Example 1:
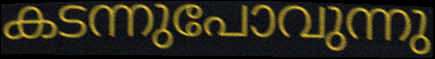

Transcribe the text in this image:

കടന്നുപോവുന്നു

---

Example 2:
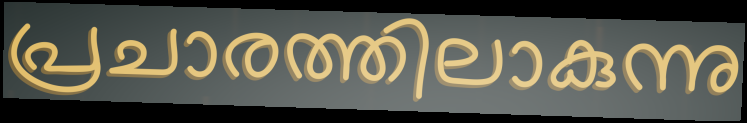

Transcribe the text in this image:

പ്രചാരത്തിലാകുന്നു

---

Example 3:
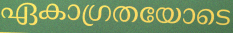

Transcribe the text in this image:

ഏകാഗ്രതയോടെ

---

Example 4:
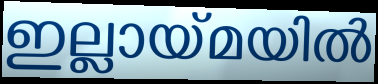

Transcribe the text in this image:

ഇല്ലായ്മയിൽ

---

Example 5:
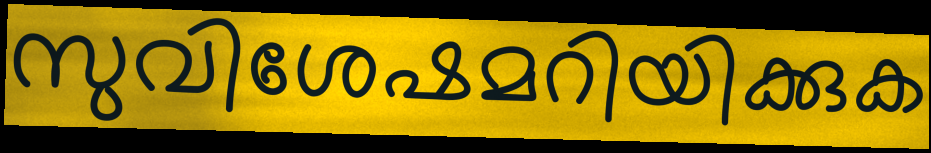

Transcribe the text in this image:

സുവിശേഷമറിയിക്കുക